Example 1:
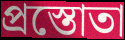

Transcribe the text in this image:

প্রস্তোতা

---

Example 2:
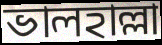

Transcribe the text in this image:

ভালহাল্লা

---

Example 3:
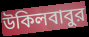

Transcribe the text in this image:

উকিলবাবুর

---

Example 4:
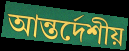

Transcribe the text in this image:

আন্তর্দেশীয়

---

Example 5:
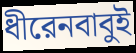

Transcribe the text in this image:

ধীরেনবাবুই